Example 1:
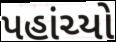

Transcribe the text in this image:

પહાંચ્યો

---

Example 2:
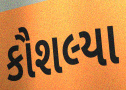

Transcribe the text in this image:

કૌશલ્યા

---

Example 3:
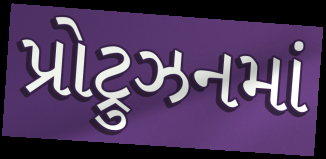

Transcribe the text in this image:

પ્રોટ્રુઝનમાં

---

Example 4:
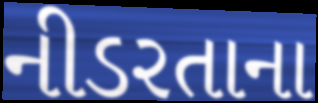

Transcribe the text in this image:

નીડરતાના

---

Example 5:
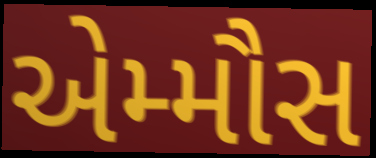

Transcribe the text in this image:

એમ્મૌસ